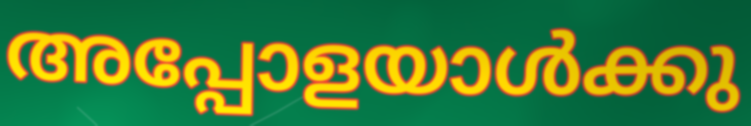
അപ്പോളയാൾക്കു